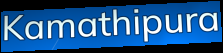
Kamathipura